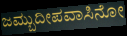
ಜಮ್ಬುದೀಪವಾಸಿನೋ